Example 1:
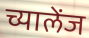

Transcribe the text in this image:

च्यालेंज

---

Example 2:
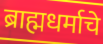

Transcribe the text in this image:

ब्राह्मधर्माचे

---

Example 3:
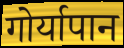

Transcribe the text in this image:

गोर्यापान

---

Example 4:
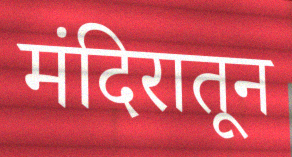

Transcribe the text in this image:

मंदिरातून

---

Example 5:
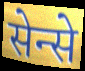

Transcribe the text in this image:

सेन्से